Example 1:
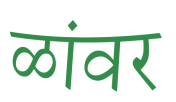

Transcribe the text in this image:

ळांवर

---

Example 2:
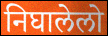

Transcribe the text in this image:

निघालेलो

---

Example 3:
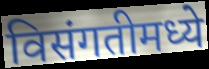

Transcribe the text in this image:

विसंगतीमध्ये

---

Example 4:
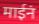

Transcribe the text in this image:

माईनं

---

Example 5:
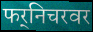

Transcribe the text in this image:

फर्निचरवर